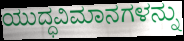
ಯುದ್ಧವಿಮಾನಗಳನ್ನು